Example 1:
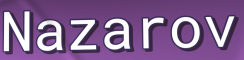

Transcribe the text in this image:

Nazarov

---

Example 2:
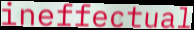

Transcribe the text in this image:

ineffectual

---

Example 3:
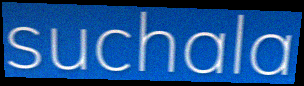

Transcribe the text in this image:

suchala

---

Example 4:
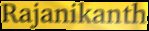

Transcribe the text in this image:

Rajanikanth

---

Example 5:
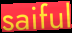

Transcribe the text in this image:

saiful